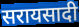
सरायसादी